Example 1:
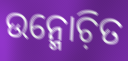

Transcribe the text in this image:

ଉନ୍ମୋଚ଼ିତ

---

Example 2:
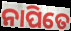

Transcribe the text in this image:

ନାପିତେ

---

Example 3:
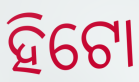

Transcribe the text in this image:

ହିଟୋ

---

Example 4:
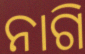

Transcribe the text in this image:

ନାଗି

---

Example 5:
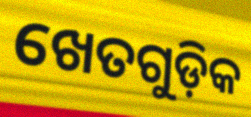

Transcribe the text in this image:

ଖେତଗୁଡ଼ିକ